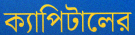
ক্যাপিটালের